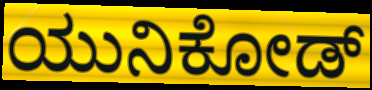
ಯುನಿಕೋಡ್